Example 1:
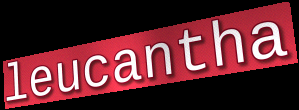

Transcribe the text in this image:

leucantha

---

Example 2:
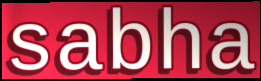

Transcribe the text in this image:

sabha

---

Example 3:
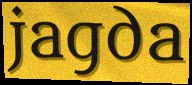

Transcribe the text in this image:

jagda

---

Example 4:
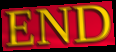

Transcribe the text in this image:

END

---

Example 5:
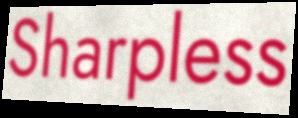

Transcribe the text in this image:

Sharpless